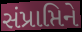
સંપ્રાપ્તિને